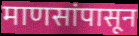
माणसांपासून